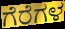
ಗೆರೆಗಳ